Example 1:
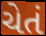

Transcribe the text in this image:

ચેતં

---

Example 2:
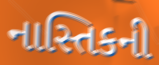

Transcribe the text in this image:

નાસ્તિકની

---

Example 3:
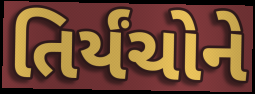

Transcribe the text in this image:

તિર્યંચોને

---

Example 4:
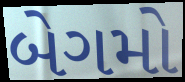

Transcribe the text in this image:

બેગમો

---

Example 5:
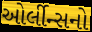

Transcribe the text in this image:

ઓર્લીન્સનો